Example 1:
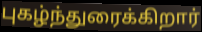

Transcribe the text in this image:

புகழ்ந்துரைக்கிறார்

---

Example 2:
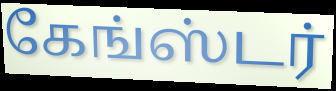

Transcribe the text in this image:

கேங்ஸ்டர்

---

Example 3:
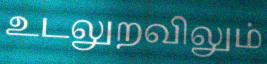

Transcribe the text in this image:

உடலுறவிலும்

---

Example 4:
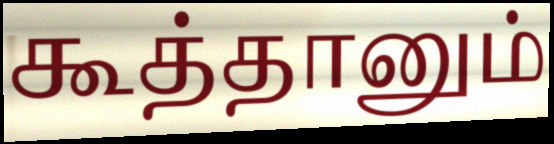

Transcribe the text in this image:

கூத்தானும்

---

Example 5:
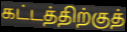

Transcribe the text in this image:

கட்டத்திற்குத்